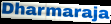
Dharmaraja